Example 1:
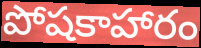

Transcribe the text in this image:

పోషకాహారం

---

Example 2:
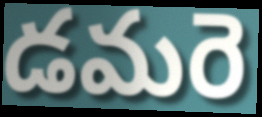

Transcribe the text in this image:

డమరె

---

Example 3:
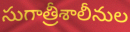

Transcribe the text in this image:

సుగాత్రీశాలీనుల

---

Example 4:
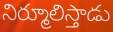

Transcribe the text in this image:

నిర్మూలిస్తాడు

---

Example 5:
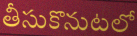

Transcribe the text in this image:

తీసుకొనుటలో